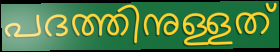
പദത്തിനുള്ളത്